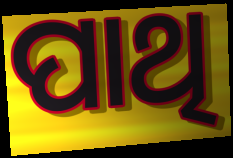
ପାଥି